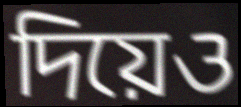
দিয়েও